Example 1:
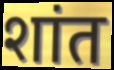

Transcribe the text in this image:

शांत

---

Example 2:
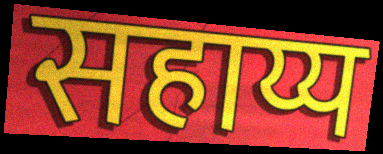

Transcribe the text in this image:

सहाय्य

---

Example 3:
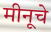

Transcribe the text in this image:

मीनूचे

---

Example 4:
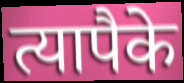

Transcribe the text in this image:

त्यापैके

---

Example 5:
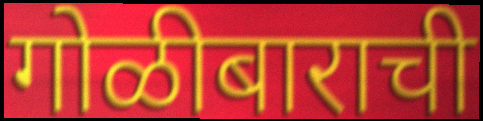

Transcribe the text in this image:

गोळीबाराची